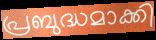
പ്രബുദ്ധമാക്കി